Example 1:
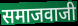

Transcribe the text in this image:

समाजवाजी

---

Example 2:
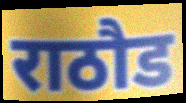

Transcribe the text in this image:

राठौड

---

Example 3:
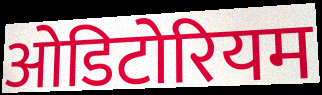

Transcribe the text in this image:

ओडिटोरियम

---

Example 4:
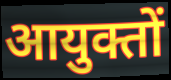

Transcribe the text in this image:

आयुक्तों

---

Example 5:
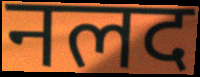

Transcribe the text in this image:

नलद